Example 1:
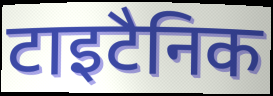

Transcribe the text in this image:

टाइटैनिक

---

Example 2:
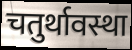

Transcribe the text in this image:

चतुर्थावस्था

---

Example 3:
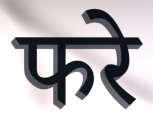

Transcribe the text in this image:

फरे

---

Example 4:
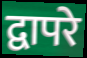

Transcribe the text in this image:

द्वापरे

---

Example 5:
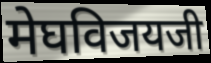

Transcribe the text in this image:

मेघविजयजी